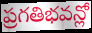
ప్రగతిభవన్లో